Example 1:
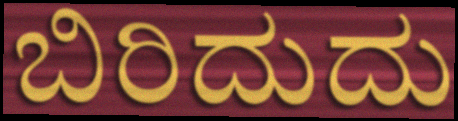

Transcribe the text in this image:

ಬಿರಿದುದು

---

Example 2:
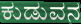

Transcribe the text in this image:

ಕುಡುವನ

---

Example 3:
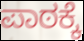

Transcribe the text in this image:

ಪಾಠಕ್ಕೆ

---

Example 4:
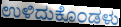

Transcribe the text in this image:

ಉಳಿದುಕೊಂಡಳು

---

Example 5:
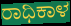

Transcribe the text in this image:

ರಾಧಿಕಾಳ